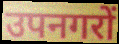
उपनगरों